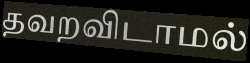
தவறவிடாமல்